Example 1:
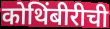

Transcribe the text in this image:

कोथिंबीरीची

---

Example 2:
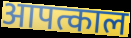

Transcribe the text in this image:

आपत्काल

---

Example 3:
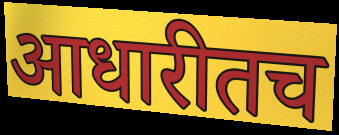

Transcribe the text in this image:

आधारीतच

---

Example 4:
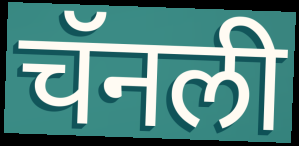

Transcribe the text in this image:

चॅनली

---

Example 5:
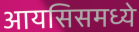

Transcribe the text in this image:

आयसिसमध्ये